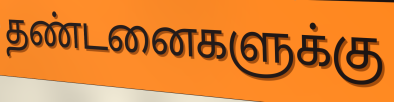
தண்டனைகளுக்கு